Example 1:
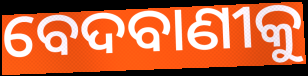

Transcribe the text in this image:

ବେଦବାଣୀକୁ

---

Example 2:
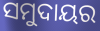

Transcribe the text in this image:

ସମୁଦାୟର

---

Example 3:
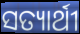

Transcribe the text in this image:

ସତ୍ୟାର୍ଥୀ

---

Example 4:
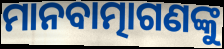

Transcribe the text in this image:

ମାନବାତ୍ମାଗଣଙ୍କୁ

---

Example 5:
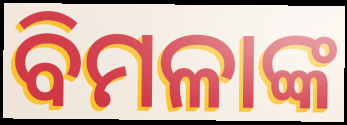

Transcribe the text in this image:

ବିମଳାଙ୍କ